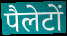
पैलेटों